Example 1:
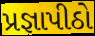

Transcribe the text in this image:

પ્રજ્ઞાપીઠો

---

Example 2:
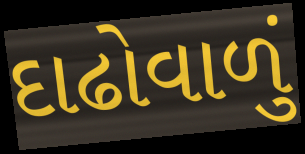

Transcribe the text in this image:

દાઢોવાળું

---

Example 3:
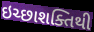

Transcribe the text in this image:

ઇચ્છાશક્તિથી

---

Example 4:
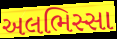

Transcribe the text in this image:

અલભિસ્સા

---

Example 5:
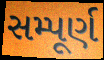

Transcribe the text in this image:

સમ્પૂર્ણ